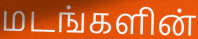
மடங்களின்